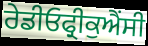
ਰੇਡੀਓਫ੍ਰੀਕੁਐਂਸੀ